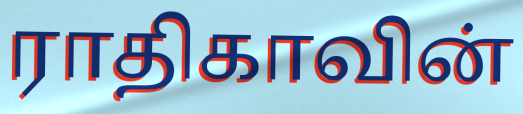
ராதிகாவின்